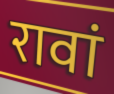
रावां